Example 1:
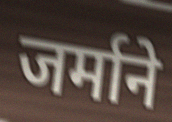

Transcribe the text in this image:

जर्माने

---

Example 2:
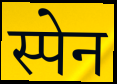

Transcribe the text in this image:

स्पेन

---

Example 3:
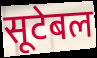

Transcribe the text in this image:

सूटेबल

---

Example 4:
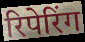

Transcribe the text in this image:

रिपेरिंग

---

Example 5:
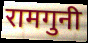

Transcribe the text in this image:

रामगुनी